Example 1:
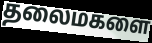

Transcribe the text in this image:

தலைமகளை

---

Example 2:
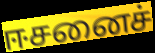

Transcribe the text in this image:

ஈசனைச்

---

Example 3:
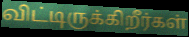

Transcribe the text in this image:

விட்டிருக்கிறீர்கள்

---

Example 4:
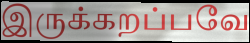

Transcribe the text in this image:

இருக்கறப்பவே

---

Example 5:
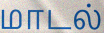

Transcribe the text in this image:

மாடல்